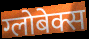
ग्लोबेक्स